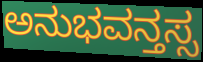
ಅನುಭವನ್ತಸ್ಸ